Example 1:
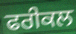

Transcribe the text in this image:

ਫਰੀਕਲ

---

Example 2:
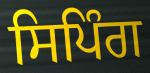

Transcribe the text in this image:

ਸਿਪਿੰਗ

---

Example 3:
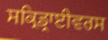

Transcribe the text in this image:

ਸਕ੍ਰਿਡ੍ਰਾਈਵਰਸ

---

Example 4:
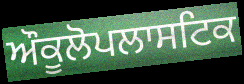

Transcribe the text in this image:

ਔਕੂਲੋਪਲਾਸਟਿਕ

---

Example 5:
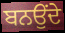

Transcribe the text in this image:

ਬਨਉਂਦੇ